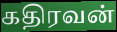
கதிரவன்